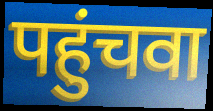
पहुंचवा